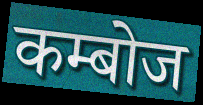
कम्बोज